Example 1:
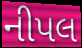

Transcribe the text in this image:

નીપલ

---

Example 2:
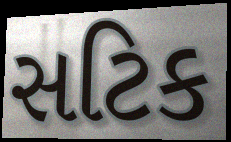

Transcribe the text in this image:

સટિક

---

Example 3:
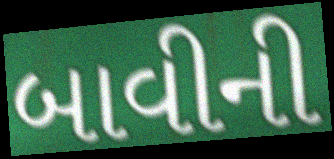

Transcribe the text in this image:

બાવીની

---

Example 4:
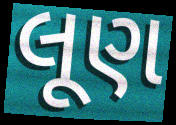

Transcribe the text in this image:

લૂણ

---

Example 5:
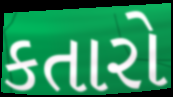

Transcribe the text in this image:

કતારો